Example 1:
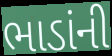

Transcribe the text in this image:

ભાડાંની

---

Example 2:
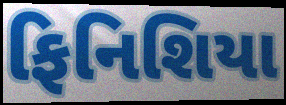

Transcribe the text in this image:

ફિનિશિયા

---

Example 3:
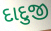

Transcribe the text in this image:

દાદુજી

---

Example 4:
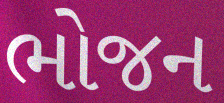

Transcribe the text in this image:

ભોજન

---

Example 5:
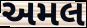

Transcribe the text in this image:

અમલ